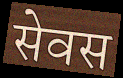
सेवस